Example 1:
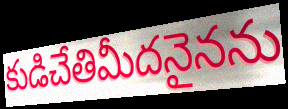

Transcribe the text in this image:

కుడిచేతిమీదనైనను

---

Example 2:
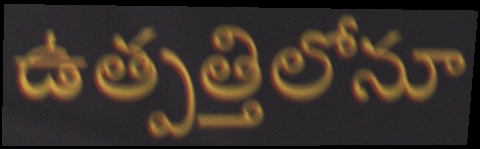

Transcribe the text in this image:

ఉత్పత్తిలోనూ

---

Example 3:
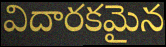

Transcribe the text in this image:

విదారకమైన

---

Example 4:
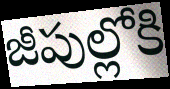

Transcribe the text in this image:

జీపుల్లోకి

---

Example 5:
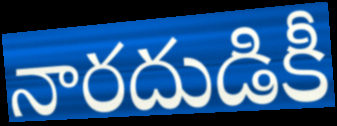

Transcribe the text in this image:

నారదుడికీ